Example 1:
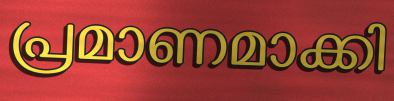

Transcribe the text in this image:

പ്രമാണമാക്കി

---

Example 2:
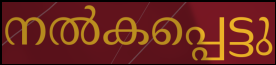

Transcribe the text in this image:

നൽകപ്പെട്ടു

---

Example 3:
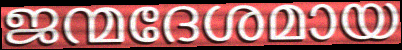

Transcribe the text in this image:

ജന്മദേശമായ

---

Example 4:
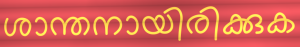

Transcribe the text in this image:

ശാന്തനായിരിക്കുക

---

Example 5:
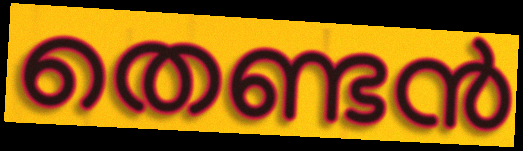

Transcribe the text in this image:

തെണ്ടൻ